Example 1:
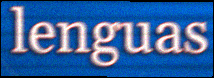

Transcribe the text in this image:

lenguas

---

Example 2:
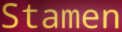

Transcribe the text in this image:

Stamen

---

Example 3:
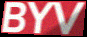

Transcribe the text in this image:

BYV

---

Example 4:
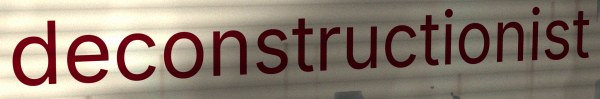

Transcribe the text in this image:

deconstructionist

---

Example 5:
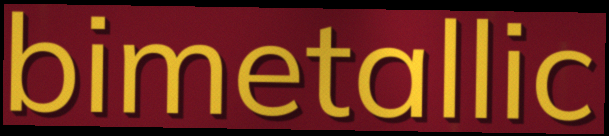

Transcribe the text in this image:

bimetallic